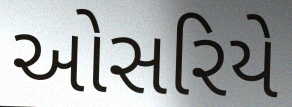
ઓસરિયે